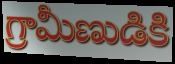
గ్రామీణుడికి